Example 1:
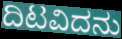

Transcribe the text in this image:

ದಿಟವಿದನು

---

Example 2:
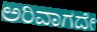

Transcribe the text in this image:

ಅರಿವಾಗದೇ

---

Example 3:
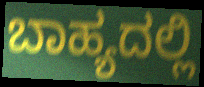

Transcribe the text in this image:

ಬಾಹ್ಯದಲ್ಲಿ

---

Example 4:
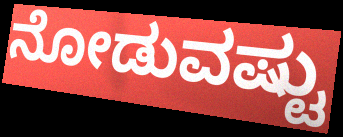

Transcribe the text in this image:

ನೋಡುವಷ್ಟು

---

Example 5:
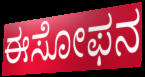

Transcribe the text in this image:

ಈಸೋಫನ